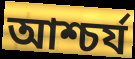
আশ্চৰ্য